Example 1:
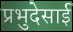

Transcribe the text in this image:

प्रभुदेसाई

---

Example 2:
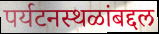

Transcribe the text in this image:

पर्यटनस्थळांबद्दल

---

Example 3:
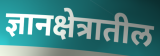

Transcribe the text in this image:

ज्ञानक्षेत्रातील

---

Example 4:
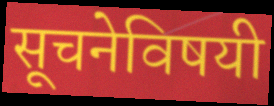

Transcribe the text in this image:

सूचनेविषयी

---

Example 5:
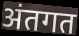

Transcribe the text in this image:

अंतगत